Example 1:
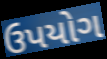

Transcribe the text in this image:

ઉપયોગ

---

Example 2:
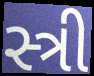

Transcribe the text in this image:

સ્ત્રી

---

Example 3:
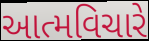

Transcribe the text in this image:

આત્મવિચારે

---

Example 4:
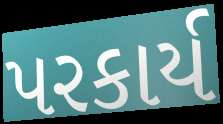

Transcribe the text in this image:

પરકાર્ય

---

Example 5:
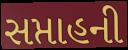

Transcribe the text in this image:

સપ્તાહની